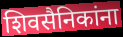
शिवसैनिकांना